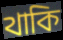
থাকি